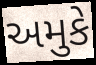
અમુકે